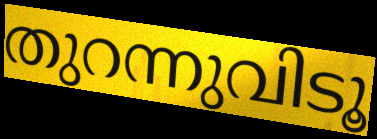
തുറന്നുവിടൂ